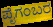
ಪೈಗಂಬರ